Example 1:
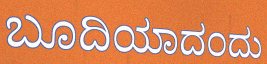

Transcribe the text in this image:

ಬೂದಿಯಾದಂದು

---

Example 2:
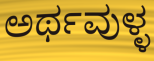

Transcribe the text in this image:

ಅರ್ಥವುಳ್ಳ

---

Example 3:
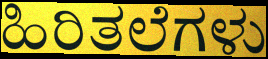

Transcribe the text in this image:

ಹಿರಿತಲೆಗಳು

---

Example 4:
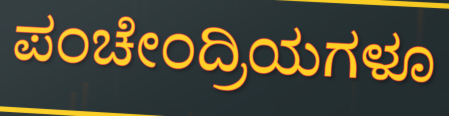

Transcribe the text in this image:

ಪಂಚೇಂದ್ರಿಯಗಳೂ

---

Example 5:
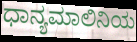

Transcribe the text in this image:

ಧಾನ್ಯಮಾಲಿನಿಯ